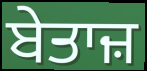
ਬੇਤਾਜ਼